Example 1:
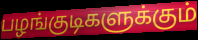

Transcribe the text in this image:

பழங்குடிகளுக்கும்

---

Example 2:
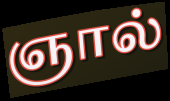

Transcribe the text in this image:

ஞால்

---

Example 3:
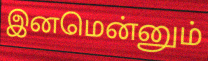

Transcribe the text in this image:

இனமென்னும்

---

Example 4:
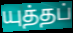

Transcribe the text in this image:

யுத்தப்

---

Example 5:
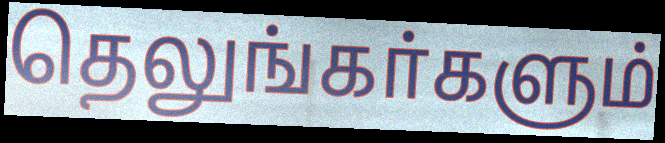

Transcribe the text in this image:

தெலுங்கர்களும்